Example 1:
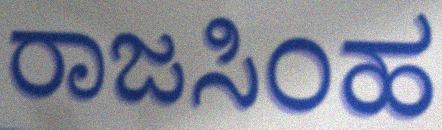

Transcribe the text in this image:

ರಾಜಸಿಂಹ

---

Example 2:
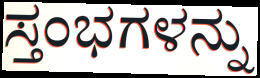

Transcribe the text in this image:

ಸ್ತಂಭಗಳನ್ನು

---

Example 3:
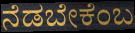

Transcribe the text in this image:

ನೆಡಬೇಕೆಂಬ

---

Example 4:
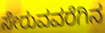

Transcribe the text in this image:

ಸೇರುವವರೆಗಿನ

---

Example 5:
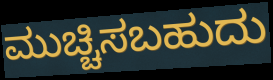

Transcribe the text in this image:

ಮುಚ್ಚಿಸಬಹುದು